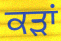
ਕੜਾਂ